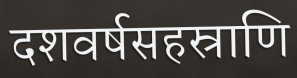
दशवर्षसहस्राणि